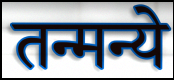
तन्मन्ये